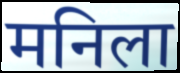
मनिला